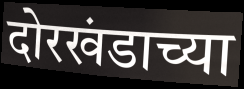
दोरखंडाच्या